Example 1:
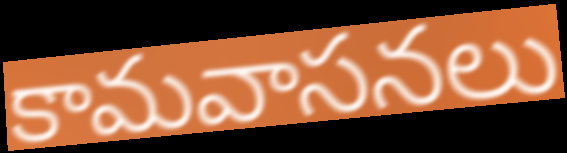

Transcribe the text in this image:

కామవాసనలు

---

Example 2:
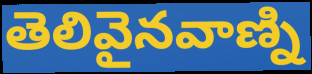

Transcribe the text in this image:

తెలివైనవాణ్ని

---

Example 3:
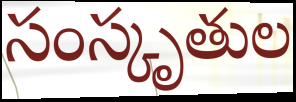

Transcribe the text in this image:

సంస్కృతుల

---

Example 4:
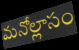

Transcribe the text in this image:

మనోల్లాసం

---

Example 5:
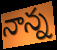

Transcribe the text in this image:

నాన్న